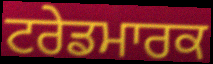
ਟਰੇਡਮਾਰਕ